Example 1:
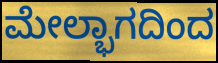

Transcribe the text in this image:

ಮೇಲ್ಭಾಗದಿಂದ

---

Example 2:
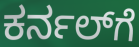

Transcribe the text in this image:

ಕರ್ನಲ್‌ಗೆ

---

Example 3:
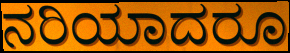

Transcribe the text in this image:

ನರಿಯಾದರೂ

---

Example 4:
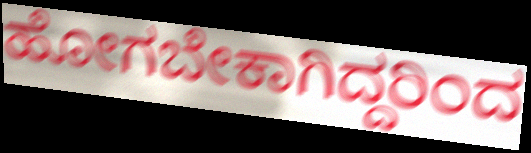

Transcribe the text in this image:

ಹೋಗಬೇಕಾಗಿದ್ದರಿಂದ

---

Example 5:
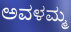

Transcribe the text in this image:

ಅವಳಮ್ಮ